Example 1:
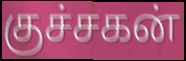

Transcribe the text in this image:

குச்சகன்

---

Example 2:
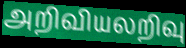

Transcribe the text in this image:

அறிவியலறிவு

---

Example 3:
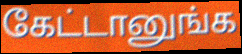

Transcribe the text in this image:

கேட்டானுங்க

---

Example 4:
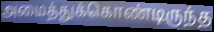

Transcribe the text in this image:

அமைத்துக்கொண்டிருந்த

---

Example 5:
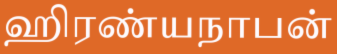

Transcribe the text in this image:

ஹிரண்யநாபன்